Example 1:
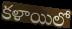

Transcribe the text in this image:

కళాయిలో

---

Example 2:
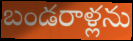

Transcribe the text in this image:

బండరాళ్లను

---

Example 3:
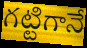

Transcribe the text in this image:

గట్టిగానే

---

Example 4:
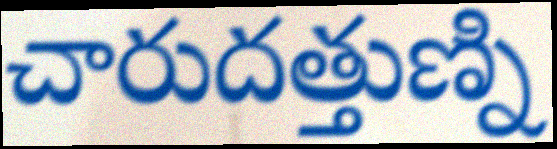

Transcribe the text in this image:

చారుదత్తుణ్ని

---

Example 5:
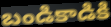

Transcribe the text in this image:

బండికాడికి